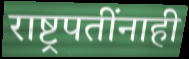
राष्ट्रपतींनाही